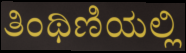
ತಿಂಥಿಣಿಯಲ್ಲಿ